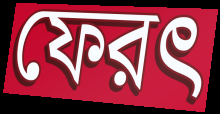
ফেরৎ